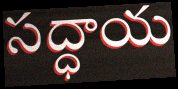
సద్ధాయ